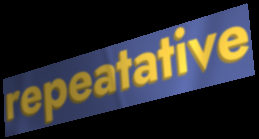
repeatative